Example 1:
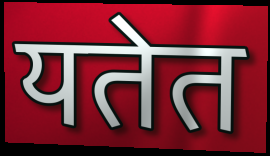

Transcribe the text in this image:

यतेत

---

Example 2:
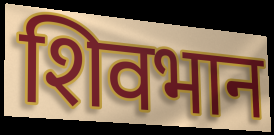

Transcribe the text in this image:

शिवभान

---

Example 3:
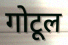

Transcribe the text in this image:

गोटूल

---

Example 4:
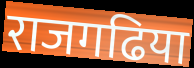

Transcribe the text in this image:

राजगढिया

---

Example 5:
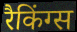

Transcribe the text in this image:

रैकिंग्स